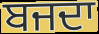
ਬਜਦਾ